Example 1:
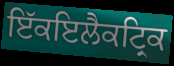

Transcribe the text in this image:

ਇੱਕਇਲੈਕਟ੍ਰਿਕ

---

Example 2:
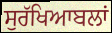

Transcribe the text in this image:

ਸੁਰੱਖਿਆਬਲਾਂ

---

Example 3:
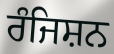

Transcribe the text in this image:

ਰੰਜਿਸ਼ਨ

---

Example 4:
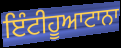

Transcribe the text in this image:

ਇੰਟੀਹੂਆਟਾਨਾ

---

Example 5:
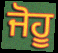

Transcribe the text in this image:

ਜੋਹੂ